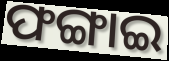
ଫଙ୍ଗାଇ